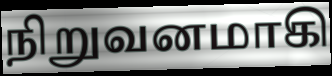
நிறுவனமாகி